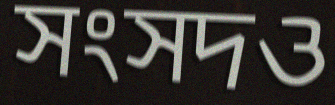
সংসদও